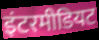
इंटरमीडियट